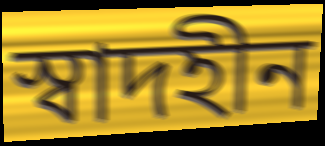
স্বাদহীন